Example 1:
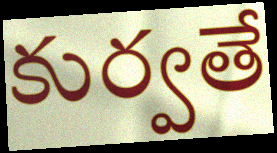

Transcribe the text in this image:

కుర్వతే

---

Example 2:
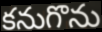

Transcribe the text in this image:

కనుగొను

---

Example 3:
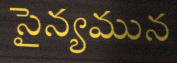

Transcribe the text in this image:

సైన్యమున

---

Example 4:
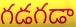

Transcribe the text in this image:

గడగడా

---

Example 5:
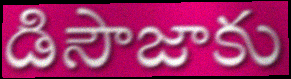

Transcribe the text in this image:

డిసౌజాకు